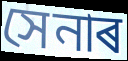
সেনাৰ